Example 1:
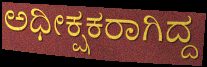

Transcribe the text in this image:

ಅಧೀಕ್ಷಕರಾಗಿದ್ದ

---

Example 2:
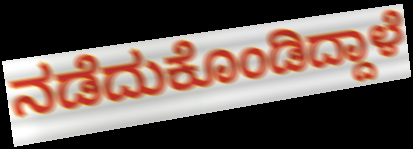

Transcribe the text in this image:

ನಡೆದುಕೊಂಡಿದ್ದಾಳೆ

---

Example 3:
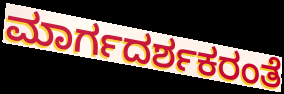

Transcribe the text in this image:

ಮಾರ್ಗದರ್ಶಕರಂತೆ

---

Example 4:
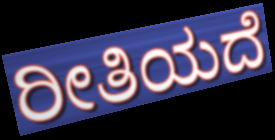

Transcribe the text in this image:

ರೀತಿಯದೆ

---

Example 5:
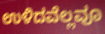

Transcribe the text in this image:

ಉಳಿದವೆಲ್ಲವೂ